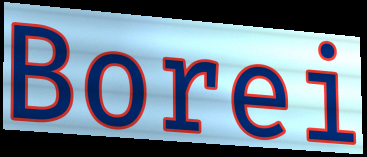
Borei